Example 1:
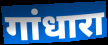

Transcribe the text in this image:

गांधारा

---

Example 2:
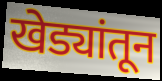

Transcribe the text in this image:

खेड्यांतून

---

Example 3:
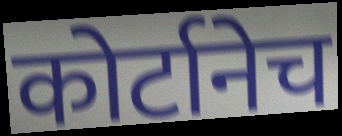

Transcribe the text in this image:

कोर्टानेच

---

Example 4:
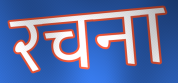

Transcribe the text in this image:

रचना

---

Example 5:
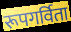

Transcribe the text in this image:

रूपगर्विता